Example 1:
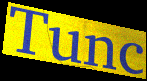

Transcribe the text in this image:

Tunc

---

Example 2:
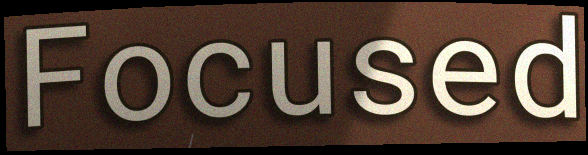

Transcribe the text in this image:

Focused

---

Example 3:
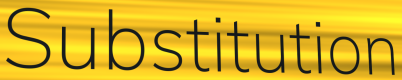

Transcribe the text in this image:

Substitution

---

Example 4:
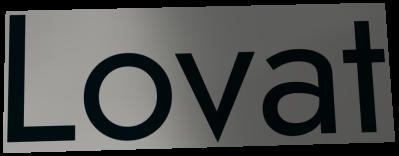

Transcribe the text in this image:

Lovat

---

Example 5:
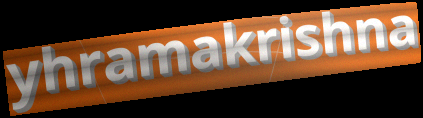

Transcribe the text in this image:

yhramakrishna